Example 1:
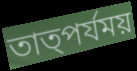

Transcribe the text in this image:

তাত্পর্যময়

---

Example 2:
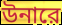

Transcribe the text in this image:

উনারে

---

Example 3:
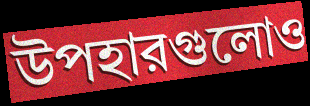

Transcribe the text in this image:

উপহারগুলোও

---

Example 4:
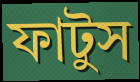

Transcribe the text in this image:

ফাটুস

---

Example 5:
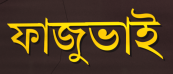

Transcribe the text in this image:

ফাজুভাই